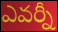
ఎవర్నీ